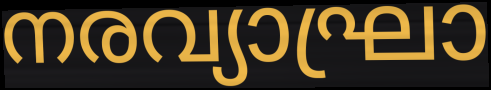
നരവ്യാഘ്രാ